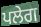
ਪਲੇਗ